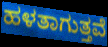
ಹಳತಾಗುತ್ತವೆ